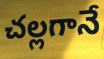
చల్లగానే